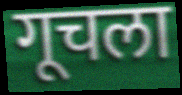
गूचला